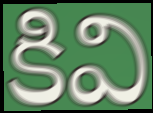
కివి